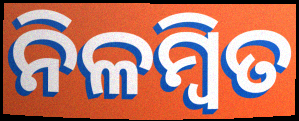
ନିଳମ୍ବିତ